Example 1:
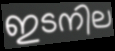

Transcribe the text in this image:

ഇടനില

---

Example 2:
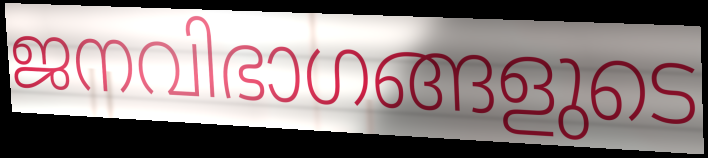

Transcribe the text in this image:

ജനവിഭാഗങ്ങളുടെ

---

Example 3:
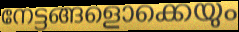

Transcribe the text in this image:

നേട്ടങ്ങളൊക്കെയും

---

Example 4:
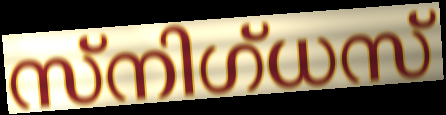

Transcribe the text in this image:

സ്നിഗ്ധസ്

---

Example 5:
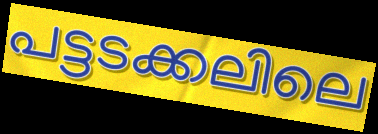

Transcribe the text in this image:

പട്ടടക്കലിലെ